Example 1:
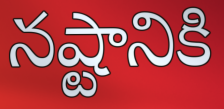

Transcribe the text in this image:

నష్టానికి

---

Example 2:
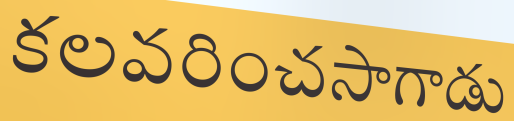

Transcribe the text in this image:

కలవరించసాగాడు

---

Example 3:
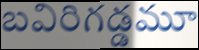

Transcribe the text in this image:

బవిరిగడ్డమూ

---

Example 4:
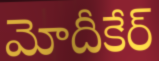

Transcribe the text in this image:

మోదీకేర్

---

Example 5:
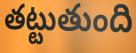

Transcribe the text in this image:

తట్టుతుంది